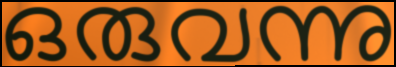
ഒരുവന്നു